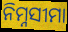
ନିମ୍ନସୀମା